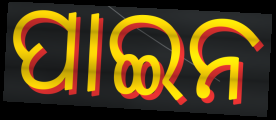
ପାଇନ